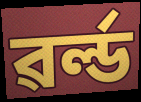
ৱৰ্ল্ড